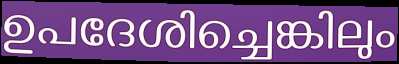
ഉപദേശിച്ചെങ്കിലും